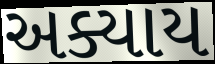
અક્યાય